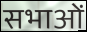
सभाओं